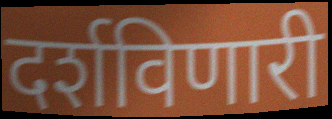
दर्शविणारी